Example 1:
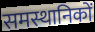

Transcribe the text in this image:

समस्थानिकों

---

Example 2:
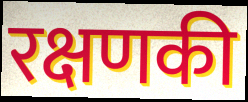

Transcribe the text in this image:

रक्षणकी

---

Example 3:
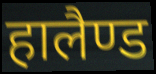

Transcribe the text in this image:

हालैण्ड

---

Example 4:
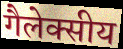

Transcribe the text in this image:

गैलेक्सीय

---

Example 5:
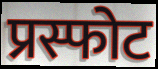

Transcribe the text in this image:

प्रस्फोट